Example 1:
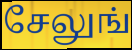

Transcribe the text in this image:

சேலுங்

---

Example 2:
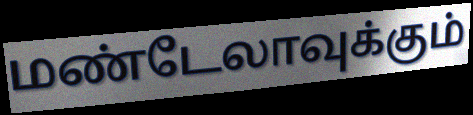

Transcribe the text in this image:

மண்டேலாவுக்கும்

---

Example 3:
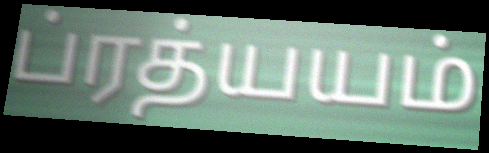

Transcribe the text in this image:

ப்ரத்யயம்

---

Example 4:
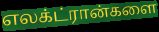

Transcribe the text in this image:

எலக்ட்ரான்களை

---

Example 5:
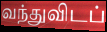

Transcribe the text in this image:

வந்துவிடப்